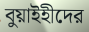
বুয়াইহীদের